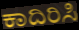
ಕಾದಿರಿಸಿ